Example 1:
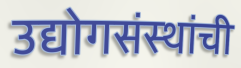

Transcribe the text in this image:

उद्योगसंस्थांची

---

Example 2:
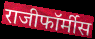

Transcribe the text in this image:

राजीफॉर्मीस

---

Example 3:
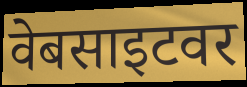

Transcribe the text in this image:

वेबसाइटवर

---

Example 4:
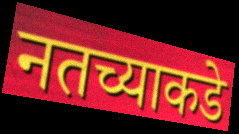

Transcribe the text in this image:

नतच्याकडे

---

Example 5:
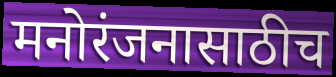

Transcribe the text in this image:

मनोरंजनासाठीच